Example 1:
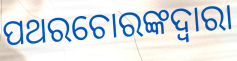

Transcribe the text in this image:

ପଥରଚୋରଙ୍କଦ୍ୱାରା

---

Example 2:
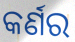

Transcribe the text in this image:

କର୍ଣର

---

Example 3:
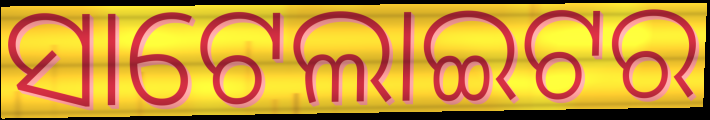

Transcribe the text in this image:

ସାଟେଲାଇଟର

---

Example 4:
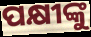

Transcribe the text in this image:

ପକ୍ଷୀଙ୍କୁ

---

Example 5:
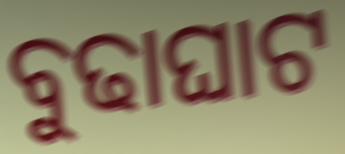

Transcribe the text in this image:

ବୁଢାଘାଟ